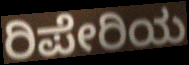
ರಿಪೇರಿಯ